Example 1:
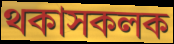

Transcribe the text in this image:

থকাসকলক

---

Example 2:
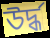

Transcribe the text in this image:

উৰ্দ্ধ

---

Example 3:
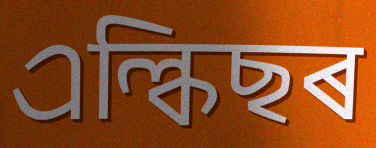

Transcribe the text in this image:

এল্কিছৰ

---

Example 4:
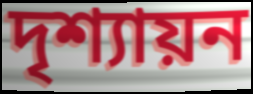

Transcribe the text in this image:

দৃশ্যায়ন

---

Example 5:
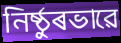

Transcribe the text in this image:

নিষ্ঠুৰভাৱে